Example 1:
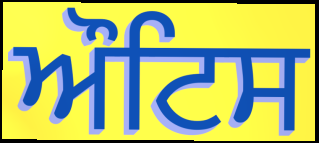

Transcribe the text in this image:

ਔਟਿਸ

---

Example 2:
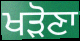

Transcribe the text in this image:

ਖੜੋਣਾ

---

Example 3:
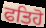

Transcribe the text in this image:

ਫਤਿਹੋ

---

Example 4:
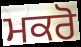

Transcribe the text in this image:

ਮਕਰੋ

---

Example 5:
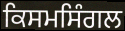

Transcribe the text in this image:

ਕਿਸਮਸਿੰਗਲ